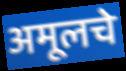
अमूलचे